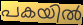
പകയിൽ